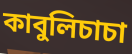
কাবুলিচাচা